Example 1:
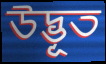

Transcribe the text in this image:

উদ্ভূত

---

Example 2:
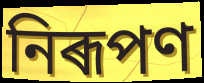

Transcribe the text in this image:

নিৰূপণ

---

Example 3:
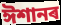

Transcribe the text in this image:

ঈশানৰ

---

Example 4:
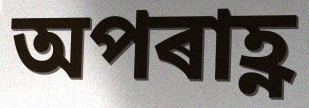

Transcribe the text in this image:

অপৰাহ্ণ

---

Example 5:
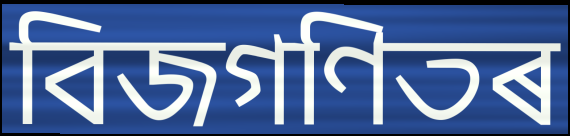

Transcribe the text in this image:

বিজগণিতৰ